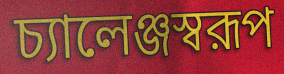
চ্যালেঞ্জস্বরূপ